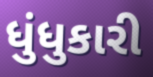
ધુંધુકારી